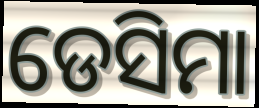
ଡେସିମା